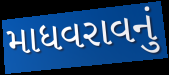
માધવરાવનું